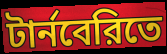
টার্নবেরিতে